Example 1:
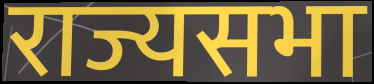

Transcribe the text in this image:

राज्यसभा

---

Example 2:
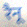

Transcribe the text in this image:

रैनू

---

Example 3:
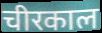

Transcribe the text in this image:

चीरकाल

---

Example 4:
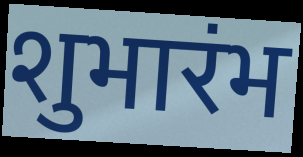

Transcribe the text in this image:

शुभारंभ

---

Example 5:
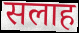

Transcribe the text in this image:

सलाह